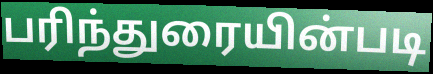
பரிந்துரையின்படி